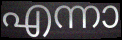
എന്നാ